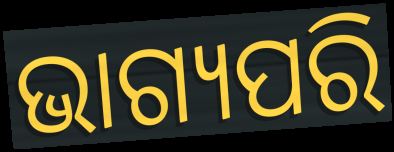
ଭାଗ୍ୟପରି